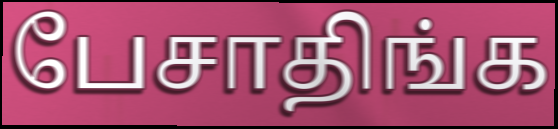
பேசாதிங்க